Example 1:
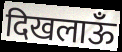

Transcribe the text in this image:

दिखलाऊँ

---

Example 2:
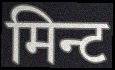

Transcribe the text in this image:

मिन्ट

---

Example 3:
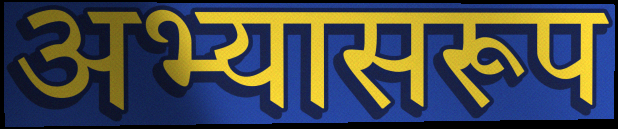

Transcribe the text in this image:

अभ्यासरूप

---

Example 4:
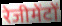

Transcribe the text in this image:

रेजीमेंटों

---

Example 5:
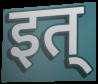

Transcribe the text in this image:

इत्